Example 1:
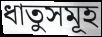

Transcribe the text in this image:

ধাতুসমূহ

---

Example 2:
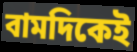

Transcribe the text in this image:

বামদিকেই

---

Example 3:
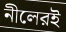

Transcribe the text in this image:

নীলেরই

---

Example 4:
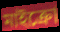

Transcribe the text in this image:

মাইক্রো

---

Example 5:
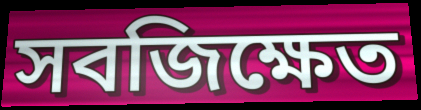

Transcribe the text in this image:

সবজিক্ষেত